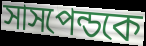
সাসপেন্ডকে